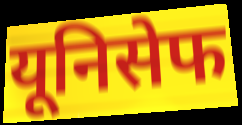
यूनिसेफ